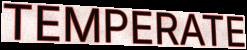
TEMPERATE